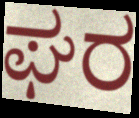
ಘರ